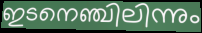
ഇടനെഞ്ചിലിന്നും